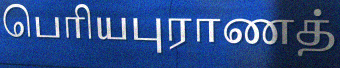
பெரியபுராணத்